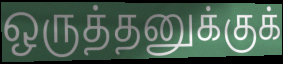
ஒருத்தனுக்குக்